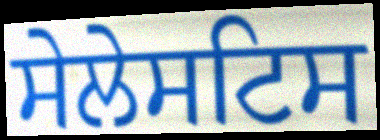
ਸੇਲੇਸਟਿਸ